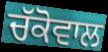
ਚੱਕੋਵਾਲ